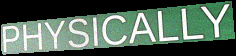
PHYSICALLY